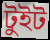
টুইট